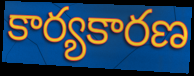
కార్యకారణ